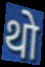
थो